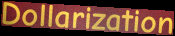
Dollarization